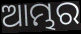
ଆମ୍ଭର